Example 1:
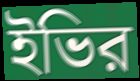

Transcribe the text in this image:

ইভির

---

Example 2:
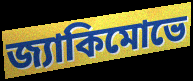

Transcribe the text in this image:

জ্যাকিমোভে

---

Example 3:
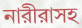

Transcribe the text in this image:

নারীরাসহ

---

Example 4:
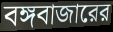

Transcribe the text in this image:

বঙ্গবাজারের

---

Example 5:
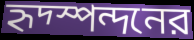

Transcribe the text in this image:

হৃদ্স্পন্দনের